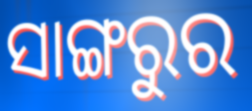
ସାଙ୍ଗରୁର